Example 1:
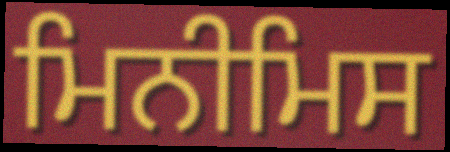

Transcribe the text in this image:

ਮਿਨੀਮਿਸ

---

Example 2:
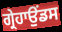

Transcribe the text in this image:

ਗ੍ਰੇਹਾਉਂਡਸ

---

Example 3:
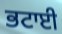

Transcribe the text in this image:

ਭਟਾਈ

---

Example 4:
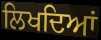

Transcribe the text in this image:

ਲਿਖਦਿਆਂ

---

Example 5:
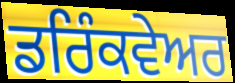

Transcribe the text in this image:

ਡਰਿੰਕਵੇਅਰ